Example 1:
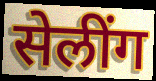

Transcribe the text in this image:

सेलींग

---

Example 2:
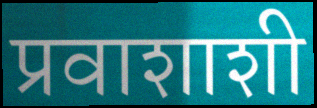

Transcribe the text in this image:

प्रवाशाशी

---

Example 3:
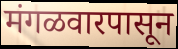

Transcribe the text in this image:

मंगळवारपासून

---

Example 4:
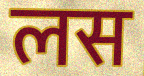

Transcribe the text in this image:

लस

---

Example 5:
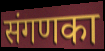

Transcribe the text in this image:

संगणका